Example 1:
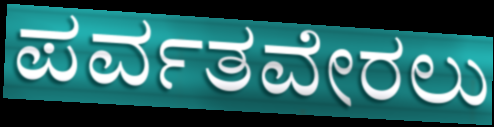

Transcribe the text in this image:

ಪರ್ವತವೇರಲು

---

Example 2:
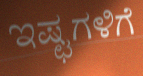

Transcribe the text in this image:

ಇಷ್ಟಗಳಿಗೆ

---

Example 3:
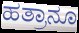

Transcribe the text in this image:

ಹತ್ರಾನೂ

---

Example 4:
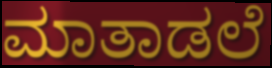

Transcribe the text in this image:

ಮಾತಾಡಲೆ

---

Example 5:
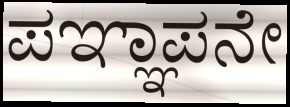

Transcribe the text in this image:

ಪಞ್ಞಾಪನೇ